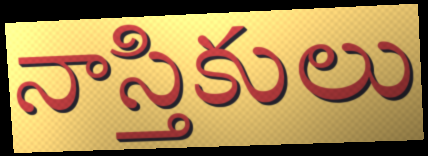
నాస్తికులు